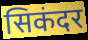
सिकंदर